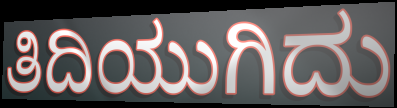
ತಿದಿಯುಗಿದು